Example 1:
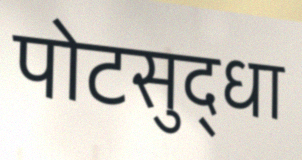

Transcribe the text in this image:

पोटसुद्धा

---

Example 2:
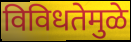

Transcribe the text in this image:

विविधतेमुळे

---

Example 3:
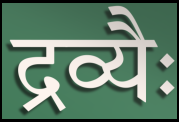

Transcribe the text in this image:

द्रव्यैः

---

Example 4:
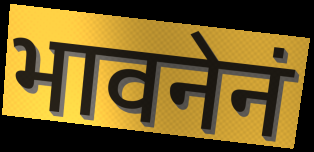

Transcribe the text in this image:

भावनेनं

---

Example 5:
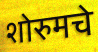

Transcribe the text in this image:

शोरुमचे